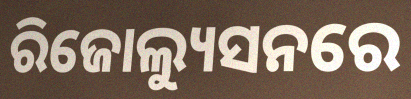
ରିଜୋଲ୍ୟୁସନରେ